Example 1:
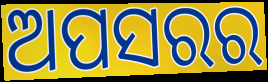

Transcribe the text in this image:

ଅପସରର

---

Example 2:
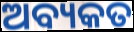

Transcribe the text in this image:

ଅବ୍ୟକତ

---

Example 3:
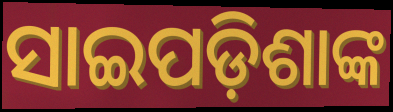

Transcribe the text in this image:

ସାଇପଡ଼ିଶାଙ୍କ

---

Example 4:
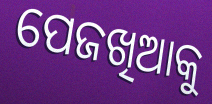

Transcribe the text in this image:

ପେଜଖିଆକୁ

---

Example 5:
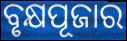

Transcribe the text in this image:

ବୃକ୍ଷପୂଜାର